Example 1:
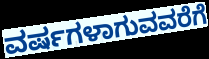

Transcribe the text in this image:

ವರ್ಷಗಳಾಗುವವರೆಗೆ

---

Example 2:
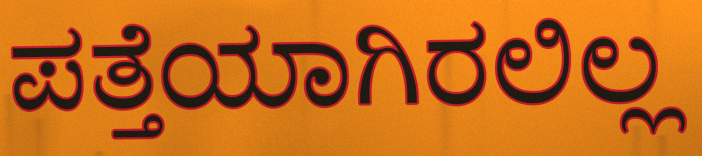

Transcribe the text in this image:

ಪತ್ತೆಯಾಗಿರಲಿಲ್ಲ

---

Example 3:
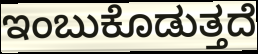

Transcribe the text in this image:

ಇಂಬುಕೊಡುತ್ತದೆ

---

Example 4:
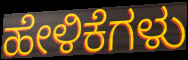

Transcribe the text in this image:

ಹೇಳಿಕೆಗಳು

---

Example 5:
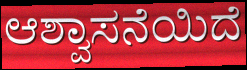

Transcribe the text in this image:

ಆಶ್ವಾಸನೆಯಿದೆ